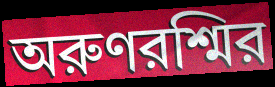
অরুণরশ্মির